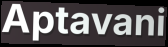
Aptavani